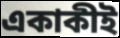
একাকীই